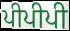
ਪੀਪੀਪੀ